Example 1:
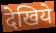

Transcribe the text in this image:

देखिये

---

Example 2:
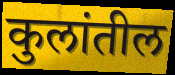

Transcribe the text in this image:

कुलांतील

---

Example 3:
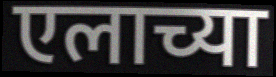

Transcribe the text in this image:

एलाच्या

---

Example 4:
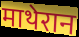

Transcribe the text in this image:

माथेरान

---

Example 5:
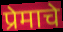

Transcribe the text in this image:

प्रेमाचे